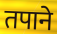
तपाने